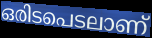
ഒരിടപെടലാണ്